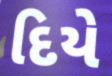
દિયે